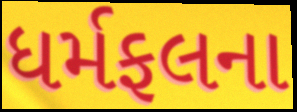
ધર્મફલના